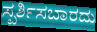
ಸ್ಪರ್ಶಿಸಬಾರದು